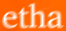
etha